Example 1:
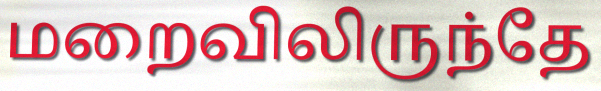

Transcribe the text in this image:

மறைவிலிருந்தே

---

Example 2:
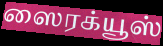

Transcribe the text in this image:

ஸைரக்யூஸ்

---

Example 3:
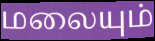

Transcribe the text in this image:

மலையும்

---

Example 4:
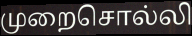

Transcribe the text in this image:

முறைசொல்லி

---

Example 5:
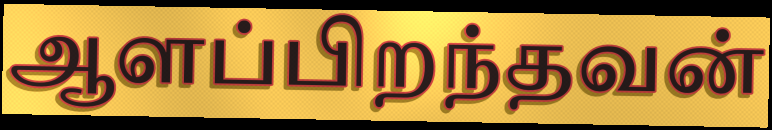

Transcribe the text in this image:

ஆளப்பிறந்தவன்